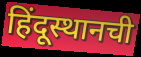
हिंदूस्थानची